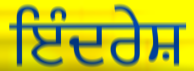
ਇੰਦਰੇਸ਼